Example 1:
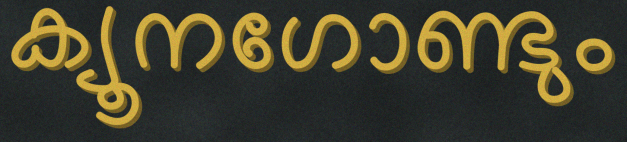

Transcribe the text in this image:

ക്യൂനഗോണ്ടും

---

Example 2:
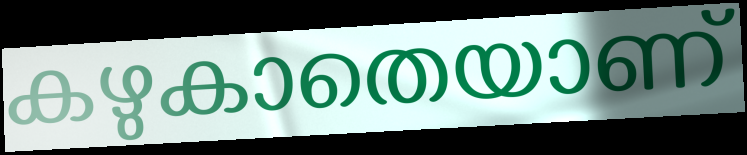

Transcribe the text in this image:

കഴുകാതെയാണ്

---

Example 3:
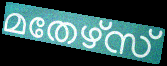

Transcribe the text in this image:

മതേഴ്സ്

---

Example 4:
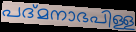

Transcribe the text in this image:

പദ്മനാഭപിള്ള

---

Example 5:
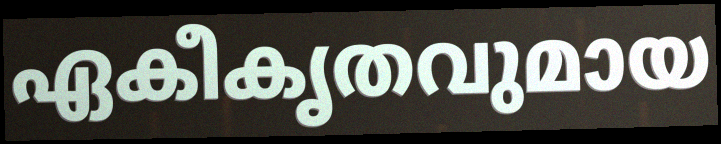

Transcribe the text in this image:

ഏകീകൃതവുമായ